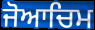
ਜੋਆਚਿਮ